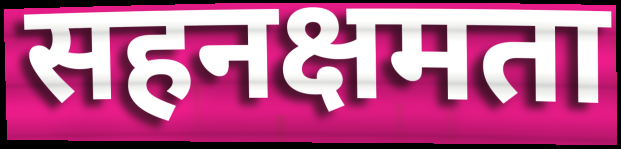
सहनक्षमता